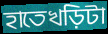
হাতেখড়িটা